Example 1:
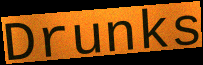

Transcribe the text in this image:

Drunks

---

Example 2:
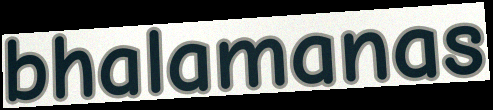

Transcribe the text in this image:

bhalamanas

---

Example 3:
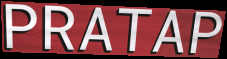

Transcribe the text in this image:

PRATAP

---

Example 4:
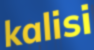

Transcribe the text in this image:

kalisi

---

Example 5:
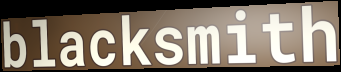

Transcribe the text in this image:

blacksmith